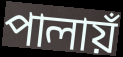
পালায়ঁ